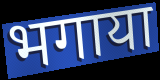
भगाया